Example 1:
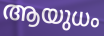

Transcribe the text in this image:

ആയുധം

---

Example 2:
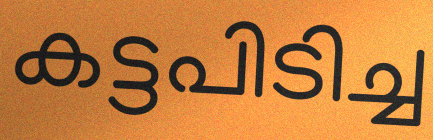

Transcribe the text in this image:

കട്ടപിടിച്ച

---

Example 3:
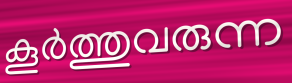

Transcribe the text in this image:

കൂർത്തുവരുന്ന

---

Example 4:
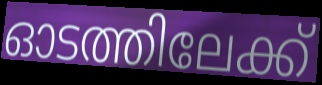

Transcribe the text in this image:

ഓടത്തിലേക്ക്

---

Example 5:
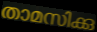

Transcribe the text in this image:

താമസിക്കു